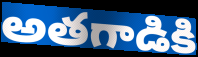
అతగాడికి